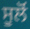
ਸੂਲੋਂ